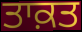
ਤਾਕ਼ਤ